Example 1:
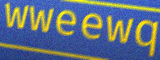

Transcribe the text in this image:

wweewq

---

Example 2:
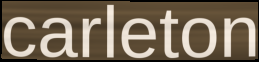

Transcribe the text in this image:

carleton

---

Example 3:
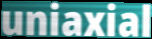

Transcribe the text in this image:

uniaxial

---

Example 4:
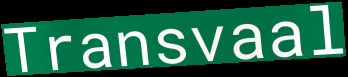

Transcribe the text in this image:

Transvaal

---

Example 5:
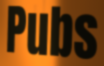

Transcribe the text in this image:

Pubs